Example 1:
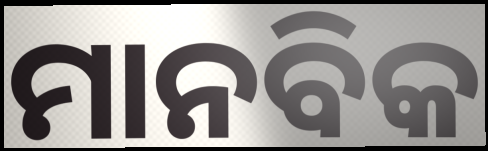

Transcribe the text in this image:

ମାନବିକ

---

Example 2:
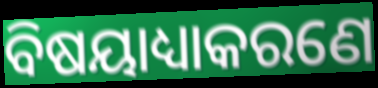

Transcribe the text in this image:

ବିଷୟାଧ୍ୟାକରଣେ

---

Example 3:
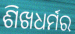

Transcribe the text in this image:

ଶିଖଧର୍ମର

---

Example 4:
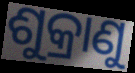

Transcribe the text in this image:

ଶୁକ୍ରାଣୁ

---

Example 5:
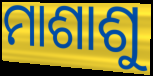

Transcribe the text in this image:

ମାଶାଶୁ